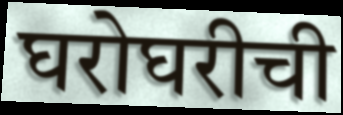
घरोघरीची